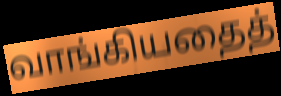
வாங்கியதைத்